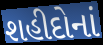
શહીદોનાં